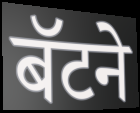
बॅटने